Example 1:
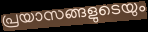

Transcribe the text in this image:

പ്രയാസങ്ങളുടെയും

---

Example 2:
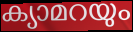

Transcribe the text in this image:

ക്യാമറയും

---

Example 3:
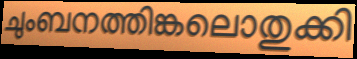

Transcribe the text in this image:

ചുംബനത്തിങ്കലൊതുക്കി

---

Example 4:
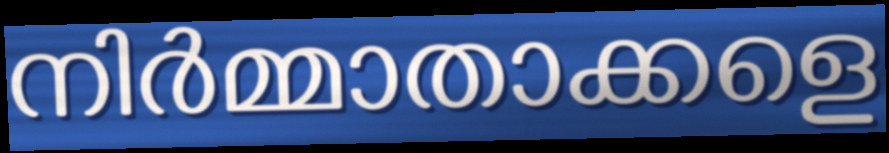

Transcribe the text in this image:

നിർമ്മാതാക്കളെ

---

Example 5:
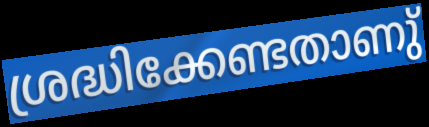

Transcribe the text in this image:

ശ്രദ്ധിക്കേണ്ടതാണു്